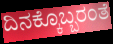
ದಿನಕ್ಕೊಬ್ಬರಂತೆ